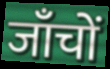
जाँचों